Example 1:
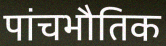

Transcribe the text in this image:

पांचभौतिक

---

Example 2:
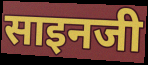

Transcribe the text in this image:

साइनजी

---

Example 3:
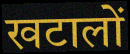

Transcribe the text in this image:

खटालों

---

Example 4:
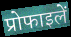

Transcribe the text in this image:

प्रोफाइलें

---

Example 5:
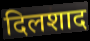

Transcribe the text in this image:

दिलशाद